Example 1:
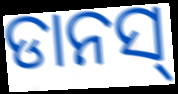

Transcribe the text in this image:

ଡାନସ୍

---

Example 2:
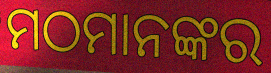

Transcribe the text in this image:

ମଠମାନଙ୍କର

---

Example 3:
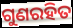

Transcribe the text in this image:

ଗୁଣରହିତ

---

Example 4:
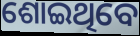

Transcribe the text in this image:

ଶୋଇଥିବେ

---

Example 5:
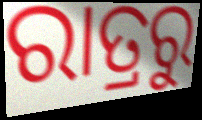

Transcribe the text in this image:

ରାତ୍ରରୁ